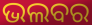
ଭଲବର